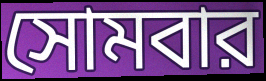
সোমবার